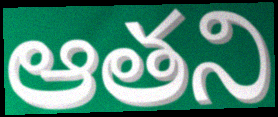
ఆతని